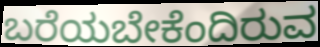
ಬರೆಯಬೇಕೆಂದಿರುವ